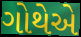
ગોથેએ